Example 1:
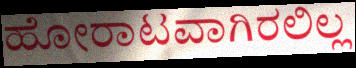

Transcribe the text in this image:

ಹೋರಾಟವಾಗಿರಲಿಲ್ಲ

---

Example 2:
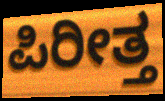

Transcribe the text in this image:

ಪಿರೀತ್ತ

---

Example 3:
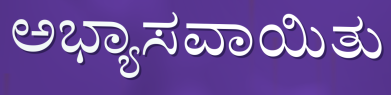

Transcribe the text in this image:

ಅಭ್ಯಾಸವಾಯಿತು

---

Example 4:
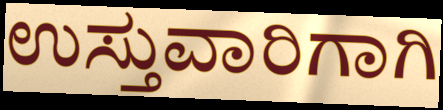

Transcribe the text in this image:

ಉಸ್ತುವಾರಿಗಾಗಿ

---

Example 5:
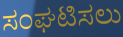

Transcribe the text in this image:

ಸಂಘಟಿಸಲು